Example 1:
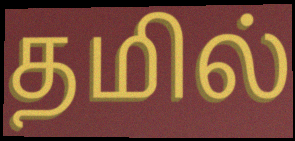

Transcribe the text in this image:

தமில்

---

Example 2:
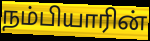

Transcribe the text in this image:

நம்பியாரின்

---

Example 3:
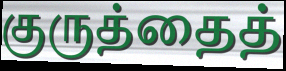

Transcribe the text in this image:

குருத்தைத்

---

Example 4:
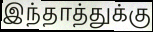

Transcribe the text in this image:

இந்தாத்துக்கு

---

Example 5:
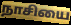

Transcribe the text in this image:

நாசியை